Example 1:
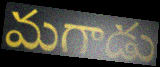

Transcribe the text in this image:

మగాడు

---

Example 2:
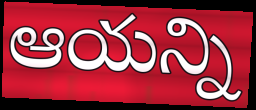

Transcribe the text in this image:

ఆయన్ని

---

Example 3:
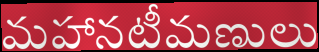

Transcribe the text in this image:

మహానటీమణులు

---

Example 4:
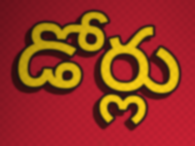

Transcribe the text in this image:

డోర్లు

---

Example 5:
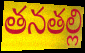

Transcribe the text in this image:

తనతల్లి